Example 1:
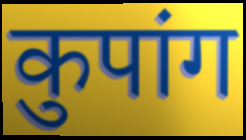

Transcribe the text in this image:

कुपांग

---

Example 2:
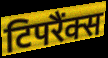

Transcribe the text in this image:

टिपरैंक्स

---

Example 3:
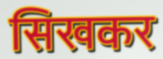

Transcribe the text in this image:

सिखकर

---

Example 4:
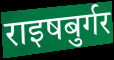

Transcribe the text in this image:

राइषबुर्गर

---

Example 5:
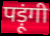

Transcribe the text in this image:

पड़ूंगी